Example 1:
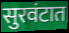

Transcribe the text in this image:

सुरवंटात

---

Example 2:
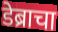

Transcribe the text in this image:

डेब्राचा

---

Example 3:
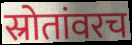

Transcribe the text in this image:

स्रोतांवरच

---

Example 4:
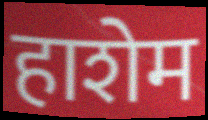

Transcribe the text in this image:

हाशेम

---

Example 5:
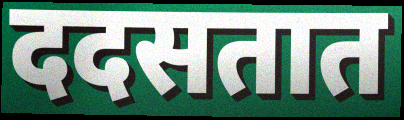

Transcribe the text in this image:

ददसतात